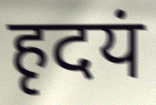
हृदयं